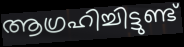
ആഗ്രഹിച്ചിട്ടുണ്ട്